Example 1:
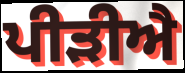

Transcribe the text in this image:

ਪੀੜੀਐ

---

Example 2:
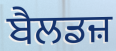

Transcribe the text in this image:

ਬੈਲਡਜ਼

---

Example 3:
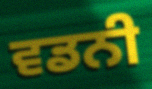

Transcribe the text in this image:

ਵਡਨੀ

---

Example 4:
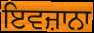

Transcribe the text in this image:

ਇਵਜ਼ਾਨਾ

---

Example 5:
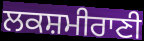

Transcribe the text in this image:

ਲਕਸ਼ਮੀਰਾਣੀ